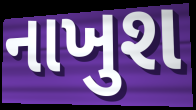
નાખુશ